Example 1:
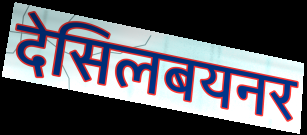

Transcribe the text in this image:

देसिलबयनर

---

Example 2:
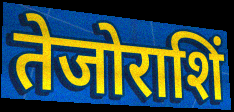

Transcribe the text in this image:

तेजोराशिं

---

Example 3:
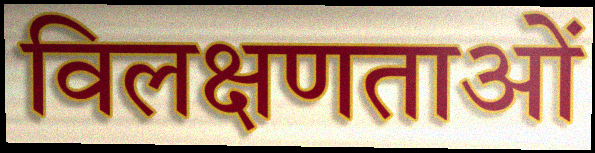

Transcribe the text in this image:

विलक्षणताओं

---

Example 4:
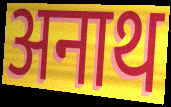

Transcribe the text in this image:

अनाथ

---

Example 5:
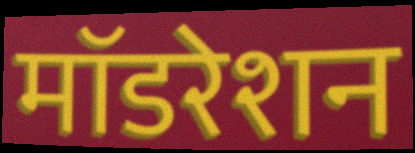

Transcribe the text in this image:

मॉडरेशन